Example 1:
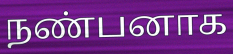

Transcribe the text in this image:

நண்பனாக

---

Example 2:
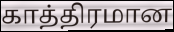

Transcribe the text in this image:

காத்திரமான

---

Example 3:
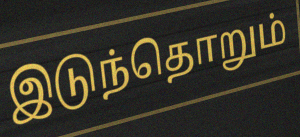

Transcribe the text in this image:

இடுந்தொறும்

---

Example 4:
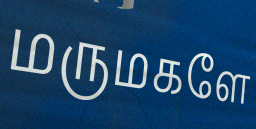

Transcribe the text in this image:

மருமகளே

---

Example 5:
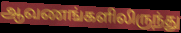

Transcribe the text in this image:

ஆவணங்களிலிருந்து